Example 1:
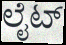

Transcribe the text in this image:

ಲೈಟ್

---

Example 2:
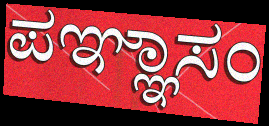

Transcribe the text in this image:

ಪಞ್ಞಾಸಂ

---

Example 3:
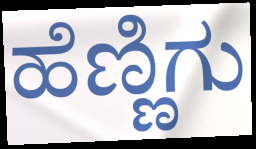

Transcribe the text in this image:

ಹೆಣ್ಣಿಗು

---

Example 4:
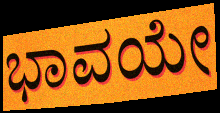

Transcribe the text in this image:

ಭಾವಯೇ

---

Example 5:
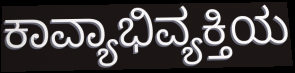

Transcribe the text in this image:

ಕಾವ್ಯಾಭಿವ್ಯಕ್ತಿಯ